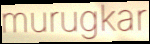
murugkar